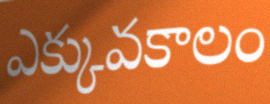
ఎక్కువకాలం